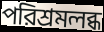
পরিশ্রমলব্ধ